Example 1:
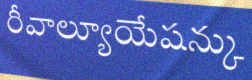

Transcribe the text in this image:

రీవాల్యూయేషన్కు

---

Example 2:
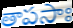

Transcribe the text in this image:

తాపసాః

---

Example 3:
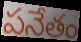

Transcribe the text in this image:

పనేతం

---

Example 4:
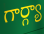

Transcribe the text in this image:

గార్గ్యా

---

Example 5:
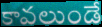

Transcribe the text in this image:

కావలుండే